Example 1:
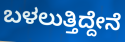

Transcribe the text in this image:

ಬಳಲುತ್ತಿದ್ದೇನೆ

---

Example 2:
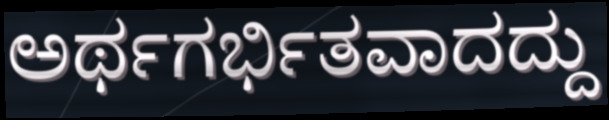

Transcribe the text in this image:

ಅರ್ಥಗರ್ಭಿತವಾದದ್ದು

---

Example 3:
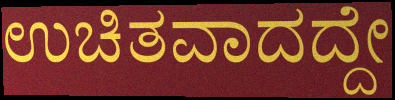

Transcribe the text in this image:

ಉಚಿತವಾದದ್ದೇ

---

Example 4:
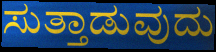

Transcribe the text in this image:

ಸುತ್ತಾಡುವುದು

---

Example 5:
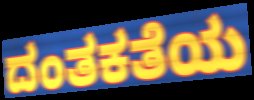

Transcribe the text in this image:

ದಂತಕತೆಯ